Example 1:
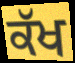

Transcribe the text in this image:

ਕੱਖ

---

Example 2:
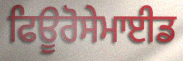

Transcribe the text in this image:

ਫਿਊਰੋਸੇਮਾਈਡ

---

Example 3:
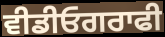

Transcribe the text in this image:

ਵੀਡੀਓਗਰਾਫੀ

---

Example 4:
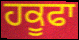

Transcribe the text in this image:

ਹਕੂਫਾ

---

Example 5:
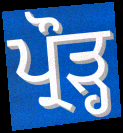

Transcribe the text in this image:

ਪ੍ਰੌੜ੍ਹ